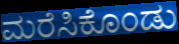
ಮರೆಸಿಕೊಂಡು